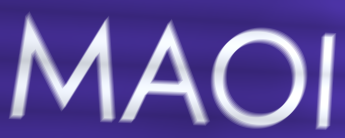
MAOI